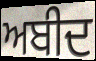
ਅਬੀਦ